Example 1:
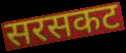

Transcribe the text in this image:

सरसकट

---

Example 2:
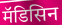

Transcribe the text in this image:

मॅडिसिन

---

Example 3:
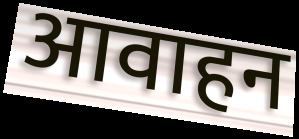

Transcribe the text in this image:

आवाहन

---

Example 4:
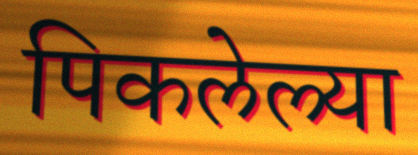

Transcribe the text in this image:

पिकलेल्या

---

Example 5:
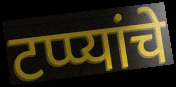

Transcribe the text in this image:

टप्प्यांचे